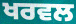
ਖਰਵਲ